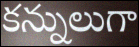
కన్నులుగా